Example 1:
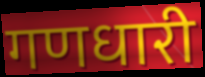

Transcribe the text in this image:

गणधारी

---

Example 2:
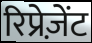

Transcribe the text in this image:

रिप्रेज़ेंट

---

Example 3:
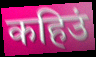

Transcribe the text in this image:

कहिउं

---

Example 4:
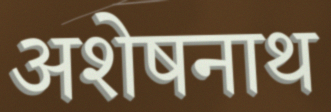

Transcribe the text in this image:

अशेषनाथ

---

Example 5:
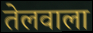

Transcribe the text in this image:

तेलवाला